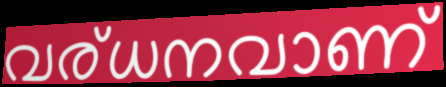
വര്ധനവാണ്